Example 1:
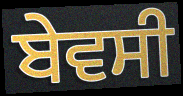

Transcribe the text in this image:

ਬੇਵਸੀ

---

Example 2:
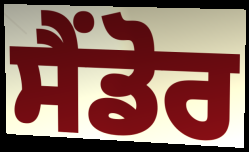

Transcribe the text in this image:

ਸੈਂਡੋਰ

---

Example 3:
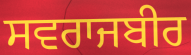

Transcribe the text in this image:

ਸਵਰਾਜਬੀਰ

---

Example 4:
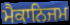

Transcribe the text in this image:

ਮੈਕਾਨਿਜਮ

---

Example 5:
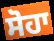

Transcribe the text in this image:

ਸੋਹਾ